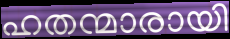
ഹതന്മാരായി